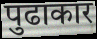
पुढाकार